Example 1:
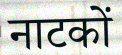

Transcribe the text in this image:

नाटकों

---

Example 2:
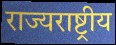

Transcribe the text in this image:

राज्यराष्ट्रीय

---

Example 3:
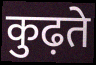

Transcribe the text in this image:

कुढ़ते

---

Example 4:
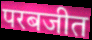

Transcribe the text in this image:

परबजीत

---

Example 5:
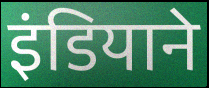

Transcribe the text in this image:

इंडियाने